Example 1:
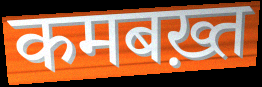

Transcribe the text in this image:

कमबख़्त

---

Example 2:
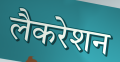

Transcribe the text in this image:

लैकरेशन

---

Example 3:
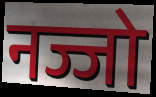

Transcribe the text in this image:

नज्जो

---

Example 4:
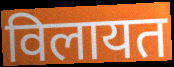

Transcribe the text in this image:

विलायत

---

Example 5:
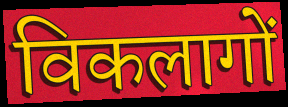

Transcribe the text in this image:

विकलागों